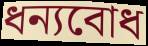
ধন্যবোধ